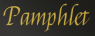
Pamphlet